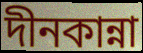
দীনকান্না